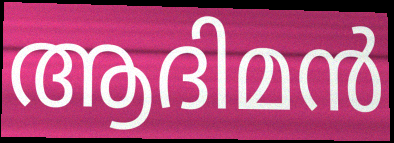
ആദിമൻ